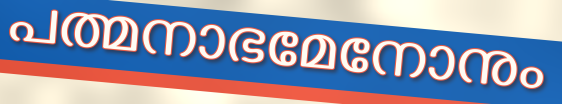
പത്മനാഭമേനോനും